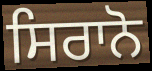
ਸਿਰਾਨੋ